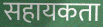
सहायकता